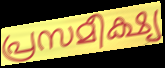
പ്രസമീക്ഷ്യ